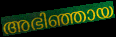
അഭിഞ്ഞായ